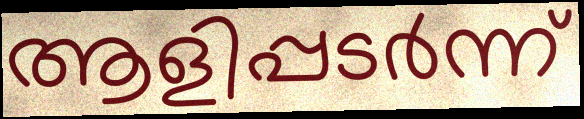
ആളിപ്പടർന്ന്